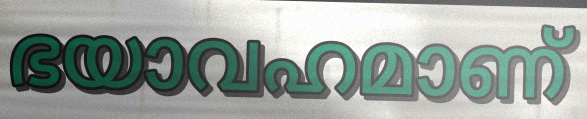
ഭയാവഹമാണ്